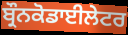
ਬ੍ਰੌਨਕੋਡਾਈਲੇਟਰ